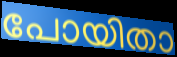
പോയിതാ